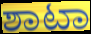
ಶಾಟಾ